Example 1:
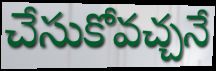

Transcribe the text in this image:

చేసుకోవచ్చనే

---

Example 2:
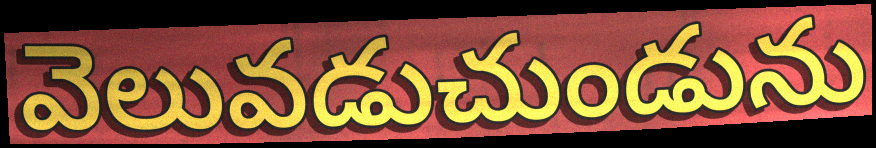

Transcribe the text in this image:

వెలువడుచుండును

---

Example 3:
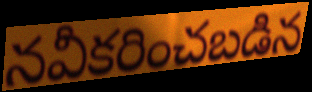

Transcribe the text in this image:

నవీకరించబడిన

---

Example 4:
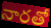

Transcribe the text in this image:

నారతో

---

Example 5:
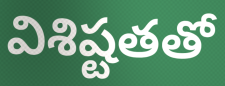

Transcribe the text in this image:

విశిష్టతతో